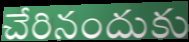
చేరినందుకు